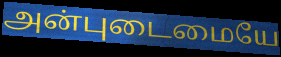
அன்புடைமையே